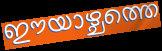
ഈയാഴ്ചത്തെ